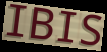
IBIS